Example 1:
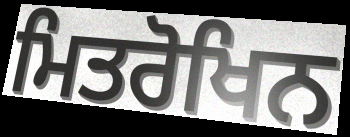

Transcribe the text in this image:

ਮਿਤਰੋਖਿਨ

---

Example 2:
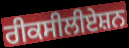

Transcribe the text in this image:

ਰੀਕਸੀਲੀਏਸ਼ਨ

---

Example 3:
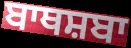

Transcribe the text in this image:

ਬਾਥਸ਼ਬਾ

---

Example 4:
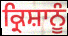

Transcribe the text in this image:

ਕ੍ਰਿਸ਼ਾਨੂੰ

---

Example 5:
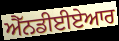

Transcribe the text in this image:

ਐੱਨਡੀਈਏਆਰ